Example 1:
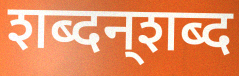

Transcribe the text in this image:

शब्दन्‌शब्द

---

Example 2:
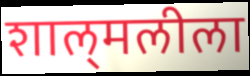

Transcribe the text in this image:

शाल्मलीला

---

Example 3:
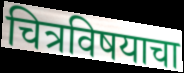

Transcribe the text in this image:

चित्रविषयाचा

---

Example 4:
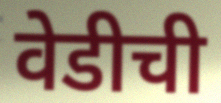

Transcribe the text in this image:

वेडीची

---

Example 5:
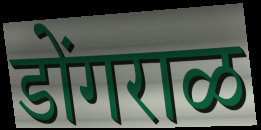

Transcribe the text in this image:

डोंगराळ